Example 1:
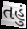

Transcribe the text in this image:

તહું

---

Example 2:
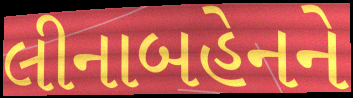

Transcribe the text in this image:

લીનાબહેનને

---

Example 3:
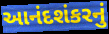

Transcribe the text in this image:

આનંદશંકરનું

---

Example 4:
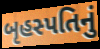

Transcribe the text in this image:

બૃહસ્પતિનું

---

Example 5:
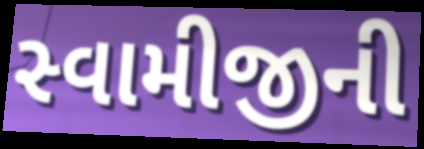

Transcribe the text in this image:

સ્વામીજીની